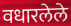
वधारलेले